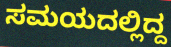
ಸಮಯದಲ್ಲಿದ್ದ